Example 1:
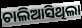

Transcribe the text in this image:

ଚାଲିଆସିଥିଲା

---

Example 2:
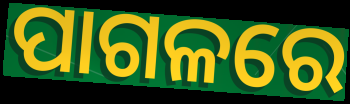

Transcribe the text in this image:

ପାଗଳରେ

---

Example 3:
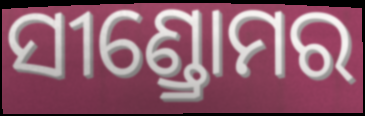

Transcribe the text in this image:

ସୀଣ୍ଡ୍ରୋମର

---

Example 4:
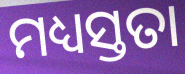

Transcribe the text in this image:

ମଧ୍ୟସ୍ତତା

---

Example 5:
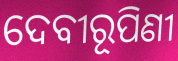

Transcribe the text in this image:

ଦେବୀରୂପିଣୀ